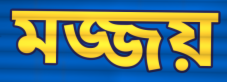
মজ্জয়